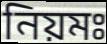
নিয়মঃ